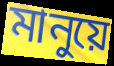
মানুয়ে